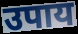
उपाय